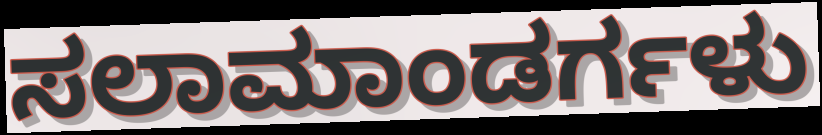
ಸಲಾಮಾಂಡರ್ಗಳು